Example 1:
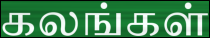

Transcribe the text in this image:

கலங்கள்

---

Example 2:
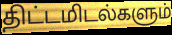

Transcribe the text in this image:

திட்டமிடல்களும்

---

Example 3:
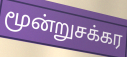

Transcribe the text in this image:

மூன்றுசக்கர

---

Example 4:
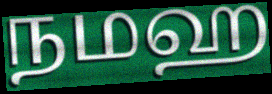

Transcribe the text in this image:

நமஹ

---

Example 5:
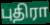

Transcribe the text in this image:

புதிரா